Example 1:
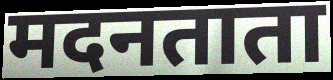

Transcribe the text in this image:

मदनताता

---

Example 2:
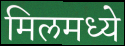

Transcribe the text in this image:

मिलमध्ये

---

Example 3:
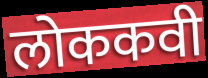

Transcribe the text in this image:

लोककवी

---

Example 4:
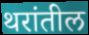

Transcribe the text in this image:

थरांतील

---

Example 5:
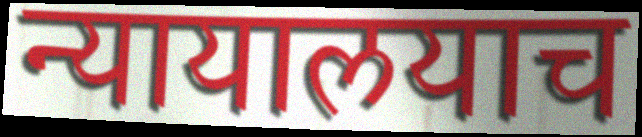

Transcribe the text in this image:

न्यायालयाच